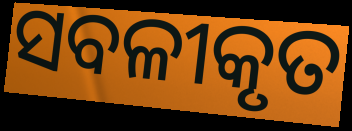
ସବଳୀକୃତ